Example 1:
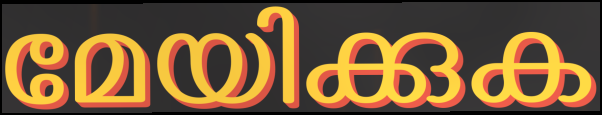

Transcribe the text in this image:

മേയിക്കുക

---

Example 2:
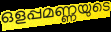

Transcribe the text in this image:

ഒളപ്പമണ്ണയുടെ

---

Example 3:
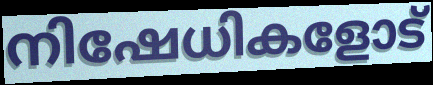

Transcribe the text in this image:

നിഷേധികളോട്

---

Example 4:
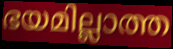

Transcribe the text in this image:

ഭയമില്ലാത്ത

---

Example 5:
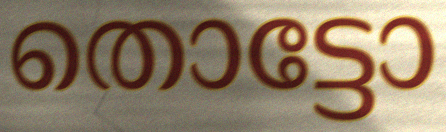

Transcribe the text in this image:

തൊട്ടോ